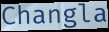
Changla